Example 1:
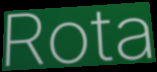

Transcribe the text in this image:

Rota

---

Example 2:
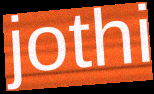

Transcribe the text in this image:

jothi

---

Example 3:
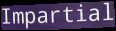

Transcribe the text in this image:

Impartial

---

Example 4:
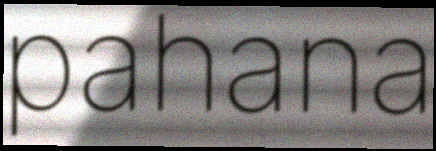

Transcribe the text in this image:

pahana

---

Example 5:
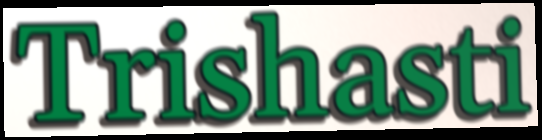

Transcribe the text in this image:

Trishasti